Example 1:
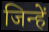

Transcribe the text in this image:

जिन्हें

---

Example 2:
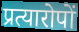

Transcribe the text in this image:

प्रत्यारोपों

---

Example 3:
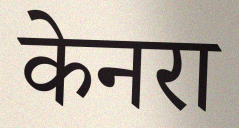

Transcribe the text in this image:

केनरा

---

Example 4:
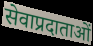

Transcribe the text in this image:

सेवाप्रदाताओं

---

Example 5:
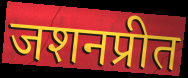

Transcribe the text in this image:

जशनप्रीत